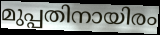
മുപ്പതിനായിരം